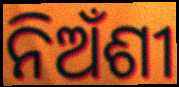
ନିଅଁଶୀ